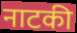
नाटकी